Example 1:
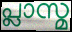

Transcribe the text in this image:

പ്ലാസ്മ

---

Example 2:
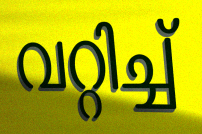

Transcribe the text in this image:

വറ്റിച്ച്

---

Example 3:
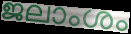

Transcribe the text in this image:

ജലാംശം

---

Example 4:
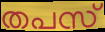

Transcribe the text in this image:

തപസ്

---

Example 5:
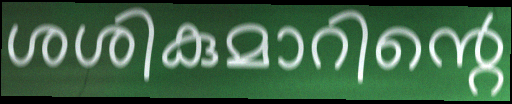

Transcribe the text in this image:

ശശികുമാറിന്റെ